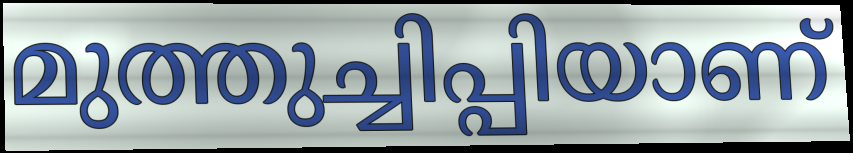
മുത്തുച്ചിപ്പിയാണ്